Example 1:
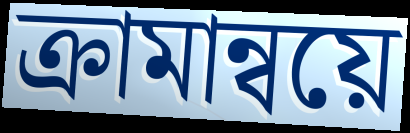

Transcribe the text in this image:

ক্রামান্বয়ে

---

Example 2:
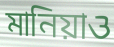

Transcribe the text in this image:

মানিয়াও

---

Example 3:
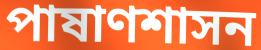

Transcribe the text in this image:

পাষাণশাসন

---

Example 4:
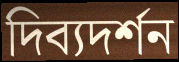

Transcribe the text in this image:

দিব্যদর্শন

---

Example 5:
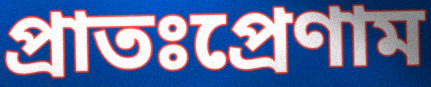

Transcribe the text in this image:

প্রাতঃপ্রেণাম